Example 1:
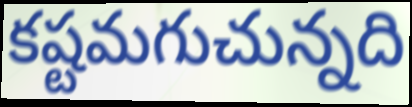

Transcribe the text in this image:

కష్టమగుచున్నది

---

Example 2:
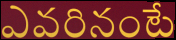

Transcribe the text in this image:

ఎవరినంటే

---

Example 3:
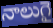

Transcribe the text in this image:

నాలుగై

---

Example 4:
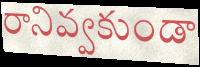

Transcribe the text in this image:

రానివ్వకుండా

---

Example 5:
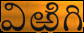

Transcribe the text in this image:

విఱిగి